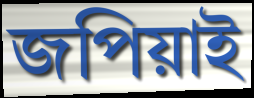
জপিয়াই